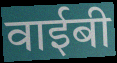
वाईबी